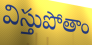
విస్తుపోతాం